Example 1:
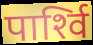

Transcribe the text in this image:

पार्श्वि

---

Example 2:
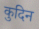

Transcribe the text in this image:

कुदिन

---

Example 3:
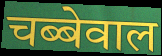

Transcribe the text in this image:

चब्बेवाल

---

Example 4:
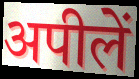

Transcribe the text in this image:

अपीलें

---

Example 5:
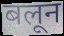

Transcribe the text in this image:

बलून